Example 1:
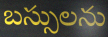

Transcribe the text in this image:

బస్సులను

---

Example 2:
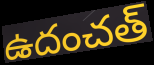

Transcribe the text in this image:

ఉదంచత్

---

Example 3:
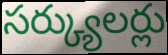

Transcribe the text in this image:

సర్క్యులర్లు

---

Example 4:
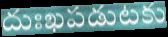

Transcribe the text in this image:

దుఃఖపడుటకు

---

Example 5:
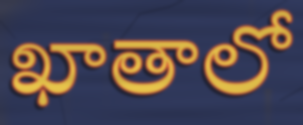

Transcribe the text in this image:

ఖాతాలో